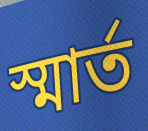
স্মার্ত